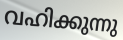
വഹിക്കുന്നു